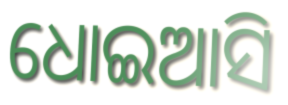
ଧୋଇଆସି